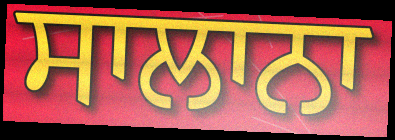
ਸਾਲਾਨਾ